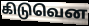
கிடுவென